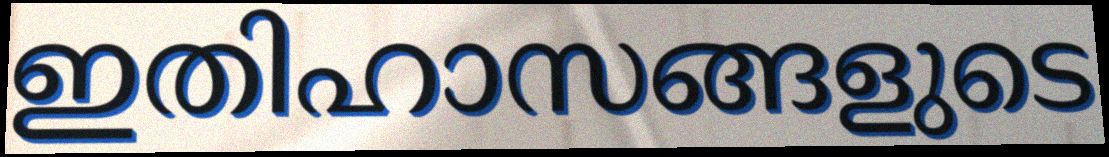
ഇതിഹാസങ്ങളുടെ